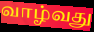
வாழ்வது